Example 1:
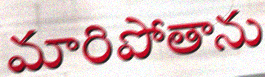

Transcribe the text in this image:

మారిపోతాను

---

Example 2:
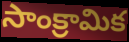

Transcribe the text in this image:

సాంక్రామిక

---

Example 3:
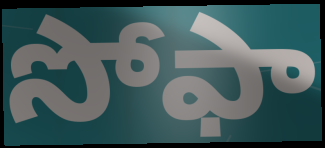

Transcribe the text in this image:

సోఫా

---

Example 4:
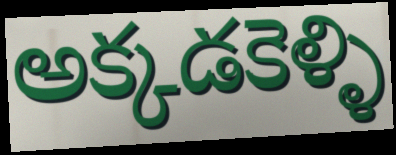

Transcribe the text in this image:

అక్కడకెళ్ళి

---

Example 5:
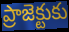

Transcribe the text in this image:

ప్రాజెక్టుకు